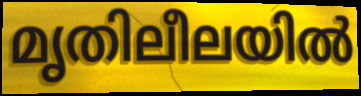
മൃതിലീലയിൽ